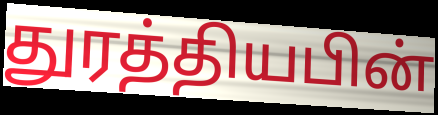
துரத்தியபின்